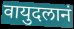
वायुदलानं